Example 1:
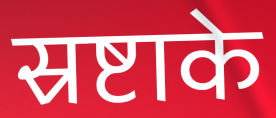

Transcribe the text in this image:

स्रष्टाके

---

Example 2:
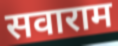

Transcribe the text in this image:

सवाराम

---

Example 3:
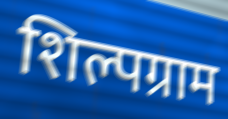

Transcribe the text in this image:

शिल्पग्राम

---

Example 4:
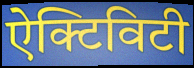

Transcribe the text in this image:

ऐक्टिविटी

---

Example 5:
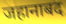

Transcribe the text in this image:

जहानाबद